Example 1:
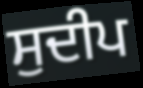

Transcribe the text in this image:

ਸੁਦੀਪ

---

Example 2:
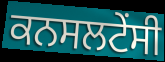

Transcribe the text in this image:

ਕਨਸਲਟੇਂਸੀ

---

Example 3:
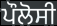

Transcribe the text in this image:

ਪੌਲੋਸੀ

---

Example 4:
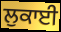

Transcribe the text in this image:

ਲੁਕਾਈ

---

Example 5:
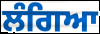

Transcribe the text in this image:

ਲੰਗਿਆ